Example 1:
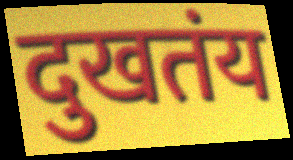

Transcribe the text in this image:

दुखतंय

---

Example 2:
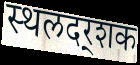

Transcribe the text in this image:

स्थलदर्शक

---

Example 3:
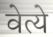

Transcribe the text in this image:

वेत्ये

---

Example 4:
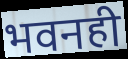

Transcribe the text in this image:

भवनही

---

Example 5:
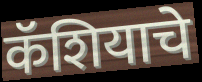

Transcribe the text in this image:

कॅशियाचे